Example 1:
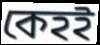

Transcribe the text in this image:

কেহই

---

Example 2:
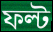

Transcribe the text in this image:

ফল্ট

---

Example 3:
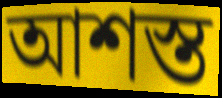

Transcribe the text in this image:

আশস্ত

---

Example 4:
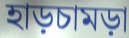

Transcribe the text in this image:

হাড়চামড়া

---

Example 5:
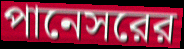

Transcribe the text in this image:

পানেসরের